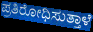
ಪ್ರತಿರೋಧಿಸುತ್ತಾಳೆ